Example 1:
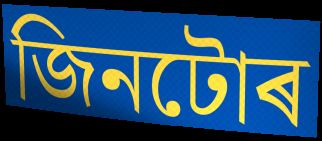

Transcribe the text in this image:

জিনটোৰ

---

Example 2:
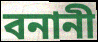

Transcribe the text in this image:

বনানী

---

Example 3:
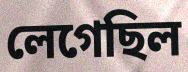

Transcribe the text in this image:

লেগেছিল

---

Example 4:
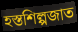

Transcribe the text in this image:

হস্তশিল্পজাত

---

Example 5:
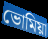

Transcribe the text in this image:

ভোমিয়া